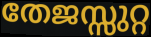
തേജസ്സുറ്റ